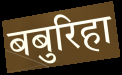
बबुरिहा